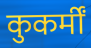
कुकर्मीं